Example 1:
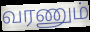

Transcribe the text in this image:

வரணும்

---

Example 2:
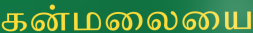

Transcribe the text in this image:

கன்மலையை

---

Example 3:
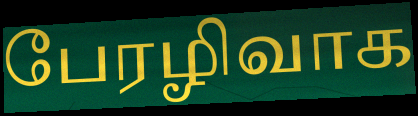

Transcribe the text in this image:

பேரழிவாக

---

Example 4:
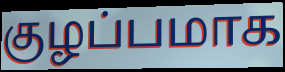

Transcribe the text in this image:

குழப்பமாக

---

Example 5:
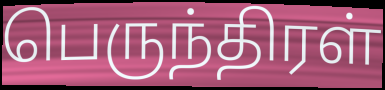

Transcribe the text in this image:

பெருந்திரள்